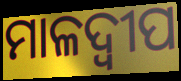
ମାଳଦ୍ବୀପ